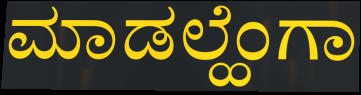
ಮಾಡಲ್ಹೆಂಗಾ